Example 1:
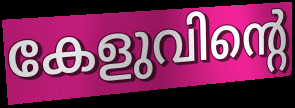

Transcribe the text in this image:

കേളുവിന്റെ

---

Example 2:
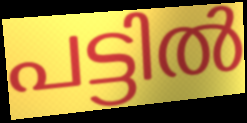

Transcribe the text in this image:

പട്ടിൽ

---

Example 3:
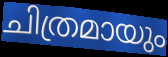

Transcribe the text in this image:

ചിത്രമായും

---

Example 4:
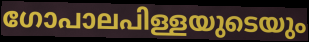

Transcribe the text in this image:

ഗോപാലപിള്ളയുടെയും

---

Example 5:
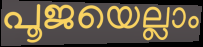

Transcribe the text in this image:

പൂജയെല്ലാം